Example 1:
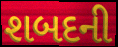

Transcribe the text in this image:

શબદની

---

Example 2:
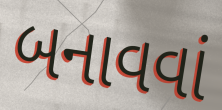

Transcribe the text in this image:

બનાવવાં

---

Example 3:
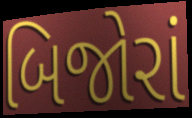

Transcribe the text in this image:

બિજોરાં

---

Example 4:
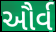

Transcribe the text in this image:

ઔર્વ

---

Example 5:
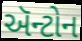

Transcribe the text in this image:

ઍન્ટોન